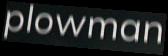
plowman